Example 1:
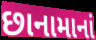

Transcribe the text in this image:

છાનામાનાં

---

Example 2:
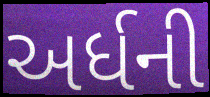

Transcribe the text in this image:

અર્ધની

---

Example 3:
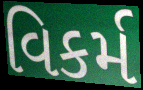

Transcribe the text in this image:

વિકર્મ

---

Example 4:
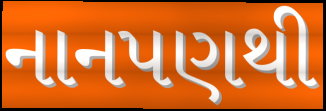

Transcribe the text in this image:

નાનપણથી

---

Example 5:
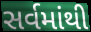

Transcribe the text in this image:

સર્વમાંથી